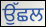
ਉੱਛਲ